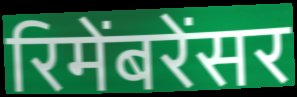
रिमेंबरेंसर